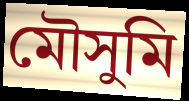
মৌসুমি